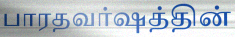
பாரதவர்ஷத்தின்